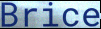
Brice